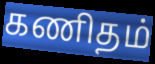
கணிதம்